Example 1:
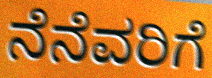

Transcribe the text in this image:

ನೆನೆವರಿಗೆ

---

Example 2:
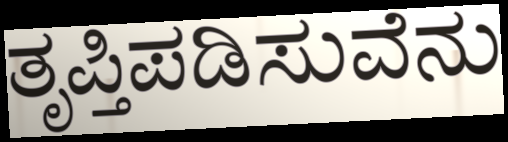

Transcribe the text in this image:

ತೃಪ್ತಿಪಡಿಸುವೆನು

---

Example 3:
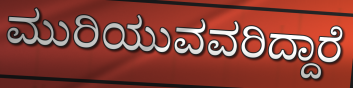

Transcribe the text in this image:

ಮುರಿಯುವವರಿದ್ದಾರೆ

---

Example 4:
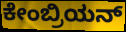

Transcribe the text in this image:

ಕೇಂಬ್ರಿಯನ್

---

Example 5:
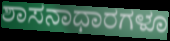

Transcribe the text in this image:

ಶಾಸನಾಧಾರಗಳೂ